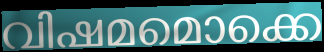
വിഷമമൊക്കെ